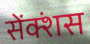
सेंक्शंस